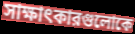
সাক্ষাৎকারগুলোকে